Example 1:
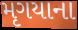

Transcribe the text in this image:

મૃગયાના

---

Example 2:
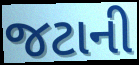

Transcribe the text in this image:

જટાની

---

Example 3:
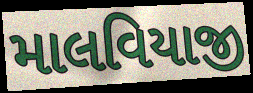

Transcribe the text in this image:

માલવિયાજી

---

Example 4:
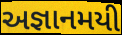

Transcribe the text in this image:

અજ્ઞાનમયી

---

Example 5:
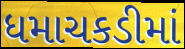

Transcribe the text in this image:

ધમાચકડીમાં